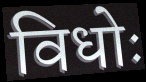
विधोः